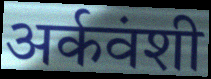
अर्कवंशी